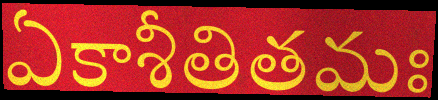
ఏకాశీతితమః